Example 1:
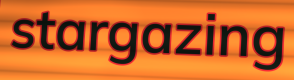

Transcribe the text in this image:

stargazing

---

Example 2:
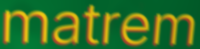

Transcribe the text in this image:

matrem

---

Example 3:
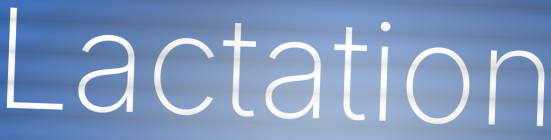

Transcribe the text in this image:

Lactation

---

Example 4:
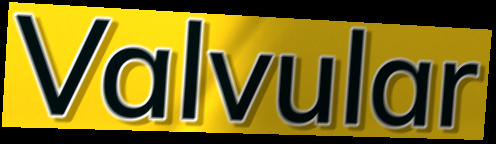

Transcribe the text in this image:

Valvular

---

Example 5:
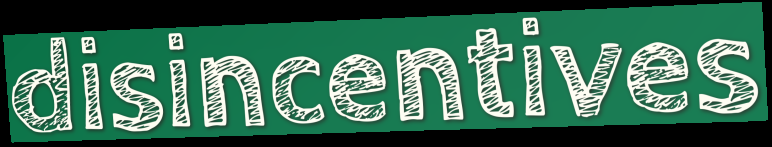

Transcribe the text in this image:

disincentives